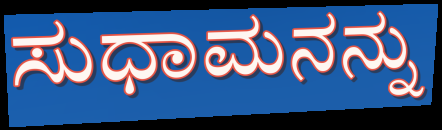
ಸುಧಾಮನನ್ನು